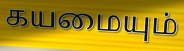
கயமையும்